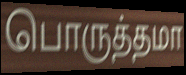
பொருத்தமா